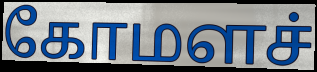
கோமளச்